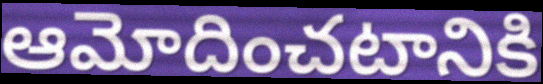
ఆమోదించటానికి